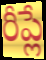
రీప్లే